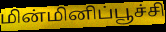
மின்மினிப்பூச்சி